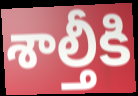
శాల్తీకి